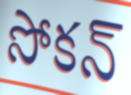
సోకన్